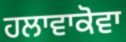
ਹਲਾਵਾਕੋਵਾ